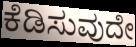
ಕೆಡಿಸುವುದೇ